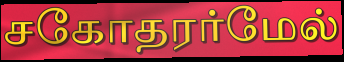
சகோதரர்மேல்